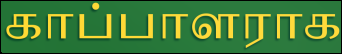
காப்பாளராக